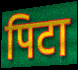
पिटा